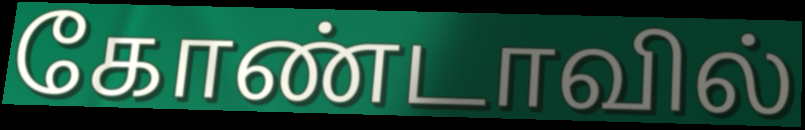
கோண்டாவில்